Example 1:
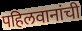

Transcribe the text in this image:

पहिलवानांची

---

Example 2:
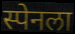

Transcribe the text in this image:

स्पेनला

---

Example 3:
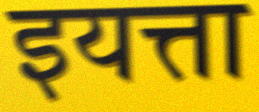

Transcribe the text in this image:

इयत्ता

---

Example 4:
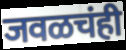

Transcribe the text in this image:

जवळचंही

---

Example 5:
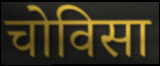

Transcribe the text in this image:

चोविसा